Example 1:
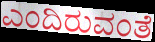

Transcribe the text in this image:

ಎಂದಿರುವಂತೆ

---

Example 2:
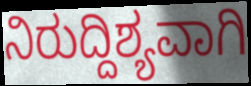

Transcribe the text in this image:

ನಿರುದ್ದಿಶ್ಯವಾಗಿ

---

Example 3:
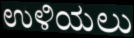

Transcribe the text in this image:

ಉಳಿಯಲು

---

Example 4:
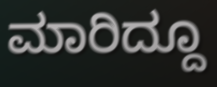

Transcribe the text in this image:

ಮಾರಿದ್ದೂ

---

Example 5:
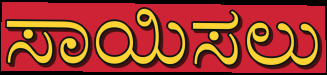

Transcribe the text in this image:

ಸಾಯಿಸಲು